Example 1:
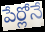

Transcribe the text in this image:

పేర్లోనే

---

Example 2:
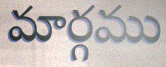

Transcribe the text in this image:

మార్గము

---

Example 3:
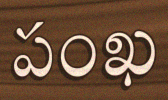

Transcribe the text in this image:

పంఖ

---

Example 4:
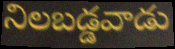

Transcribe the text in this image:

నిలబడ్డవాడు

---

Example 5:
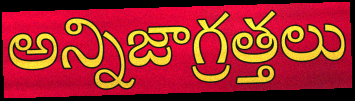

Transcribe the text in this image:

అన్నిజాగ్రత్తలు